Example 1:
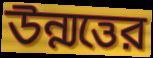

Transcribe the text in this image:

উন্মত্তের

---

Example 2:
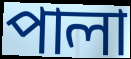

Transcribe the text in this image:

পালা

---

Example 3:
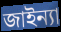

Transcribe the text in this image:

জাইন্যা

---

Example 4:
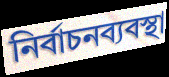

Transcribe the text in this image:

নির্বাচনব্যবস্থা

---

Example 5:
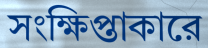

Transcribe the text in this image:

সংক্ষিপ্তাকারে